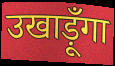
उखाड़ूँगा